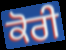
ਕੋਰੀ